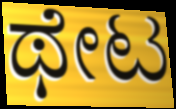
ಥೇಟ